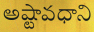
అష్టావధాని